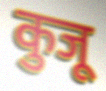
कुजू